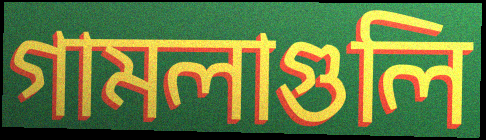
গামলাগুলি